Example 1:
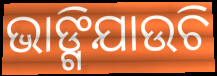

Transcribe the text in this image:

ଭାଙ୍ଗିଯାଉଚି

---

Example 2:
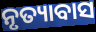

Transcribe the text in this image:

ନୃତ୍ୟାବାସ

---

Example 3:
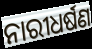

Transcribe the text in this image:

ନାରୀଧର୍ଷଣ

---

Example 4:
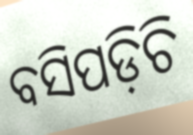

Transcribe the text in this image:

ବସିପଡ଼ିଚି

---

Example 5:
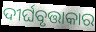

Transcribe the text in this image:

ଦୀର୍ଘବୃତ୍ତାକାର